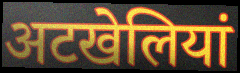
अटखेलियां